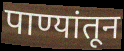
पाण्यांतून